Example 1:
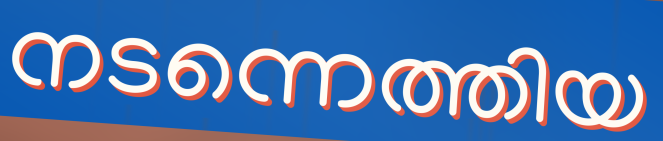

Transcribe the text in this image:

നടന്നെത്തിയ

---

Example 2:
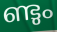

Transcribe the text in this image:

ണ്ടും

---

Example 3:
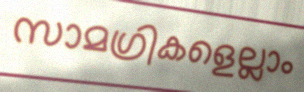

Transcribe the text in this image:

സാമഗ്രികളെല്ലാം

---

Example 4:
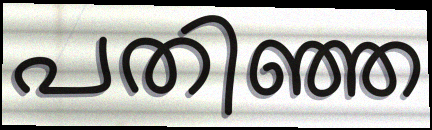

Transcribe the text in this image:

പതിഞ്ഞ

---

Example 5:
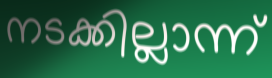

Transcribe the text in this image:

നടക്കില്ലാന്ന്